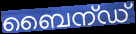
ബൈന്ഡ്